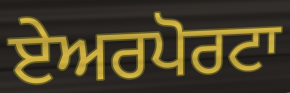
ਏਅਰਪੋਰਟਾ